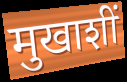
मुखाशीं